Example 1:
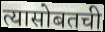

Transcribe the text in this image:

त्यासोबतची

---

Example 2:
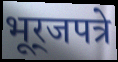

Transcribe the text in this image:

भूर्जपत्रे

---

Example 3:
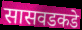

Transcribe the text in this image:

सासवडकडे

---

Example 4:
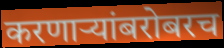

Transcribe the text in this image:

करणाऱ्यांबरोबरच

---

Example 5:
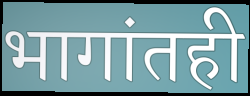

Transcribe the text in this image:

भागांतही